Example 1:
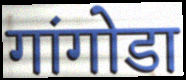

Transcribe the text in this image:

गांगोडा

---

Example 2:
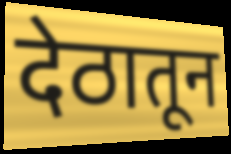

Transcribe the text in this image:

देठातून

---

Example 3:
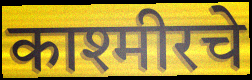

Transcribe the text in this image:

काश्मीरचे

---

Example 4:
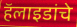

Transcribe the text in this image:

हॅलाइडांचे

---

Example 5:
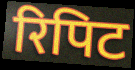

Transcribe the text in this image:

रिपिट